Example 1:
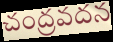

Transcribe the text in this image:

చంద్రవదన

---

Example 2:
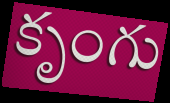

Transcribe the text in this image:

కృంగు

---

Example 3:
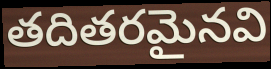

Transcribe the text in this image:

తదితరమైనవి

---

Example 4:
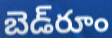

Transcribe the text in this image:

బెడ్‌రూం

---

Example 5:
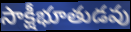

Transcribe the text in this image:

సాక్షీభూతుడవు